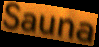
Sauna